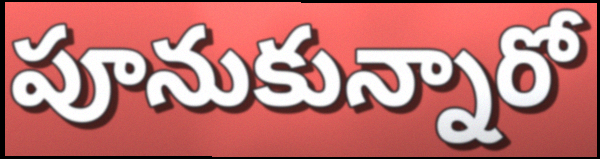
పూనుకున్నారో